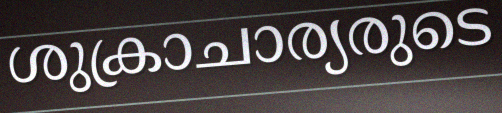
ശുക്രാചാര്യരുടെ